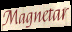
Magnetar